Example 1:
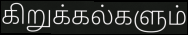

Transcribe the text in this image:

கிறுக்கல்களும்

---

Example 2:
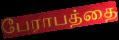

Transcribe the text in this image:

பேராபத்தை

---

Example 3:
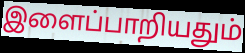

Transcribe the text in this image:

இளைப்பாறியதும்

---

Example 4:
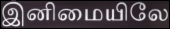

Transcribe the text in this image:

இனிமையிலே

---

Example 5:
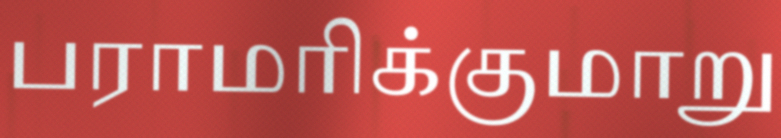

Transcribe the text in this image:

பராமரிக்குமாறு